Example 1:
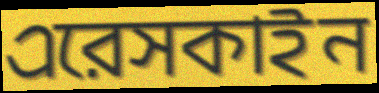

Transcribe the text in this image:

এরেসকাইন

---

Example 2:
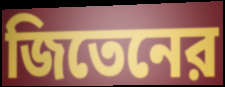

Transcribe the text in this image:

জিতেনের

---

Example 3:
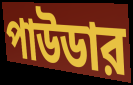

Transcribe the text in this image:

পাউডার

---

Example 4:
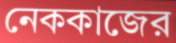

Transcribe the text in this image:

নেককাজের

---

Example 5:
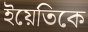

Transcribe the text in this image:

ইয়েতিকে